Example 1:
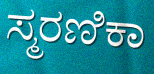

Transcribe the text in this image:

ಸ್ಮರಣಿಕಾ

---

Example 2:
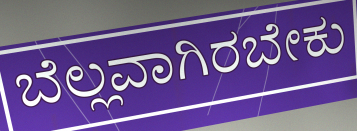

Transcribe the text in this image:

ಬೆಲ್ಲವಾಗಿರಬೇಕು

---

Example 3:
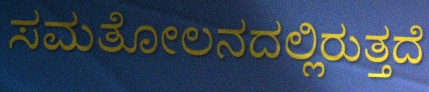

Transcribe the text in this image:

ಸಮತೋಲನದಲ್ಲಿರುತ್ತದೆ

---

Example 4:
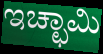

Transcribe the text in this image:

ಇಚ್ಛಾಮಿ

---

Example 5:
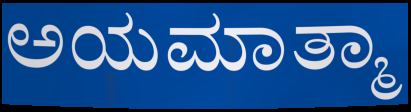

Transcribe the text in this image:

ಅಯಮಾತ್ಮಾ